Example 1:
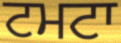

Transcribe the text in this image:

ਟਮਟਾ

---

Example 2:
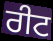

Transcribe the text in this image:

ਰੀਟ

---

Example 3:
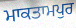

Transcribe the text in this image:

ਮਾਕਤਾਮਪੁਰ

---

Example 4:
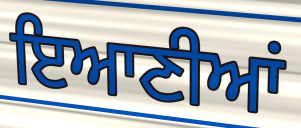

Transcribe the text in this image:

ਇਆਣੀਆਂ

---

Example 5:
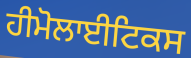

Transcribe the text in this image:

ਹੀਮੋਲਾਈਟਿਕਸ